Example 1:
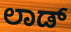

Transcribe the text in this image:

ಲಾಡ್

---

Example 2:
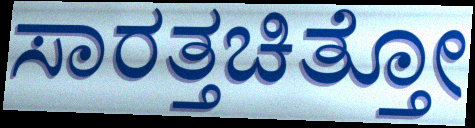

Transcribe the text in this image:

ಸಾರತ್ತಚಿತ್ತೋ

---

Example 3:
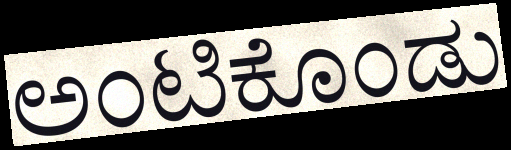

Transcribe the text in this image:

ಅಂಟಿಕೊಂಡು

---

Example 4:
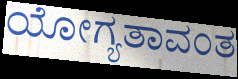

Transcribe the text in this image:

ಯೋಗ್ಯತಾವಂತ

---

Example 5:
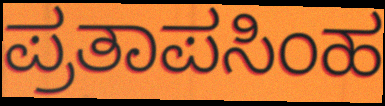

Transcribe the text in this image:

ಪ್ರತಾಪಸಿಂಹ